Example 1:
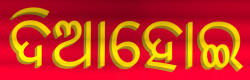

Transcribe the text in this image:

ଦିଆହୋଇ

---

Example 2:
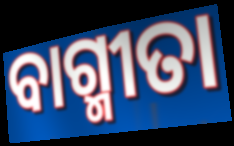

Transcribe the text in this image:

ବାଗ୍ମୀତା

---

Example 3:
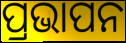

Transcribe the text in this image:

ପ୍ରଭାପନ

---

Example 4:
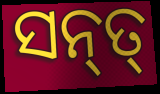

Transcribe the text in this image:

ସନ୍‌ତ୍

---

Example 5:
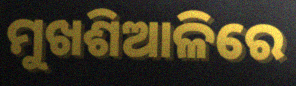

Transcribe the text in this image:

ମୁଖଶିଆଳିରେ